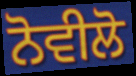
ਨੋਵੀਲੋ